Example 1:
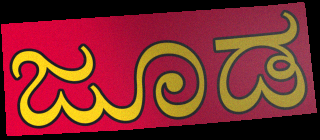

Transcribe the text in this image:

ಜೂಡ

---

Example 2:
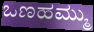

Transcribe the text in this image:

ಒಣಹಮ್ಮು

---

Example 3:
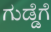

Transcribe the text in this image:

ಗುಡ್ಡೆಗೆ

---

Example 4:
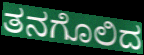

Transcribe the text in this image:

ತನಗೊಲಿದ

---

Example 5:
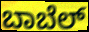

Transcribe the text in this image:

ಬಾಬೆಲ್